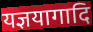
यज्ञयागादि